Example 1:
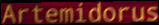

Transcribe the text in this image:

Artemidorus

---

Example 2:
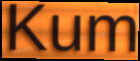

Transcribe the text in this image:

Kum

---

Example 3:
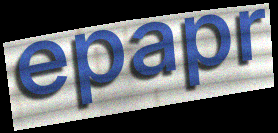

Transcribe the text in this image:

epapr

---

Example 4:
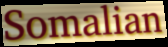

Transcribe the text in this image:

Somalian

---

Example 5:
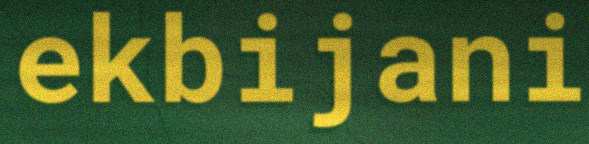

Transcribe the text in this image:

ekbijani